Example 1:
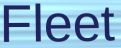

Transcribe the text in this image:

Fleet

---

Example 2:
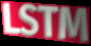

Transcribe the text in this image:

LSTM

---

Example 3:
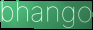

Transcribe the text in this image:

bhango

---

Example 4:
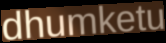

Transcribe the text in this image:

dhumketu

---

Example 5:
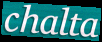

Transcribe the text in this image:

chalta